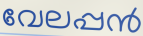
വേലപ്പൻ